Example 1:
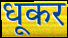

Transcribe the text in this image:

धूकर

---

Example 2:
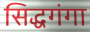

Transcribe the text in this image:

सिद्धगंगा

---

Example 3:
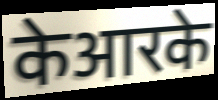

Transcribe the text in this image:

केआरके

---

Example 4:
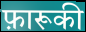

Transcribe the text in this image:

फ़ारूकी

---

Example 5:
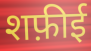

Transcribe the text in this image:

शफ़ीई